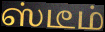
ஸ்டீம்